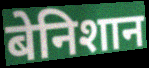
बेनिशान